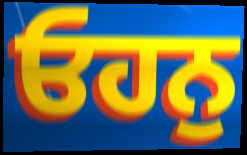
ਓਹਨੁ